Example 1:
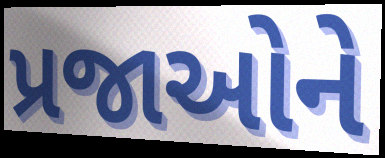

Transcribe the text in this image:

પ્રજાઓને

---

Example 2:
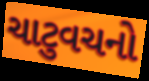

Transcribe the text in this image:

ચાટુવચનો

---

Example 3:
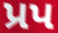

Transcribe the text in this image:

પ્રપ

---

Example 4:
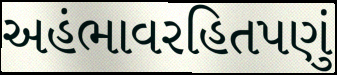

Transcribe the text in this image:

અહંભાવરહિતપણું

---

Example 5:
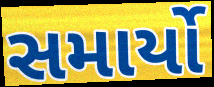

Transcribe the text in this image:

સમાર્યો